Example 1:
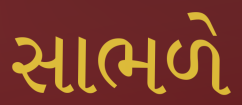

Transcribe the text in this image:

સાભળે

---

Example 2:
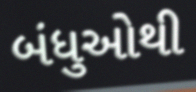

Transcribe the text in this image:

બંધુઓથી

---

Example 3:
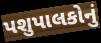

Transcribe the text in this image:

પશુપાલકોનું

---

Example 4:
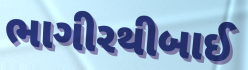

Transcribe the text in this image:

ભાગીરથીબાઈ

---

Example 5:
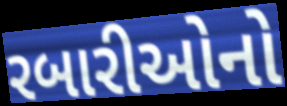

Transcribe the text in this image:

રબારીઓનો